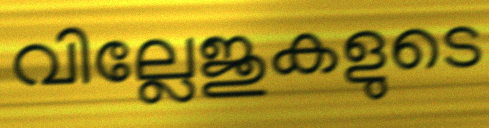
വില്ലേജുകളുടെ